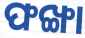
ଫଙ୍ଖା